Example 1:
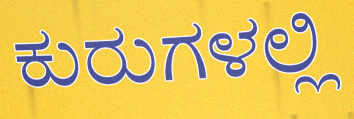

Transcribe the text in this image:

ಕುರುಗಳಲ್ಲಿ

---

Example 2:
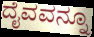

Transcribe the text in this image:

ದೈವವನ್ನೂ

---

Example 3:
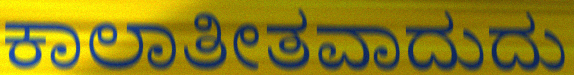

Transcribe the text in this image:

ಕಾಲಾತೀತವಾದುದು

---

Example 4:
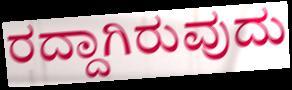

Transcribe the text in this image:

ರದ್ದಾಗಿರುವುದು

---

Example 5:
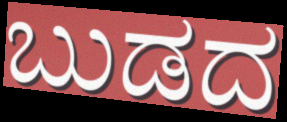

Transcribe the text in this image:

ಬುಡದ